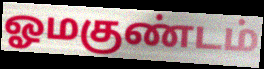
ஓமகுண்டம்